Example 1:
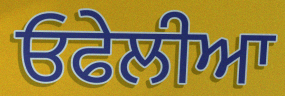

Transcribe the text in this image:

ਓਫੇਲੀਆ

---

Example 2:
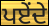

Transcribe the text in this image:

ਪਏਂਦੇ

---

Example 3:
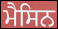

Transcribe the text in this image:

ਮੈਸਿਨ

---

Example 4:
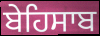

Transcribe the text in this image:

ਬੇਹਿਸਾਬ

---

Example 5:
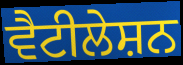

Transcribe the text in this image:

ਵੈਟੀਲੇਸ਼ਨ